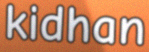
kidhan